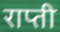
राप्ती